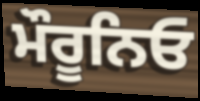
ਮੌਰੂਨਿਓ